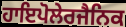
ਹਾਇਪੋਲੇਰਜੈਨਿਕ